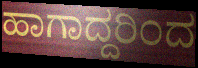
ಹಾಗಾದ್ದರಿಂದ